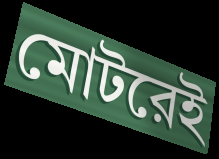
মোটরেই